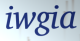
iwgia